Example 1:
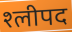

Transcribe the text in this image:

श्लीपद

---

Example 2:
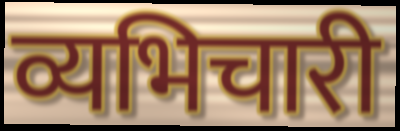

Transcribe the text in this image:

व्यभिचारी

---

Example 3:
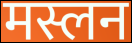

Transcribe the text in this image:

मस्लन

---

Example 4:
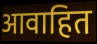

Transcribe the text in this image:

आवाहित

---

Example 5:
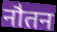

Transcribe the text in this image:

नौतन